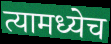
त्यामध्येच